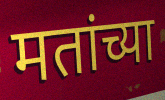
मतांच्या